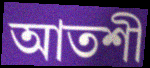
আতশী